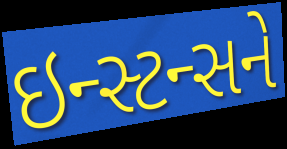
ઇન્સ્ટન્સને